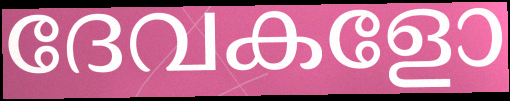
ദേവകളോ